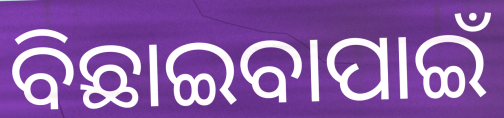
ବିଛାଇବାପାଇଁ